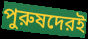
পুরুষদেরই